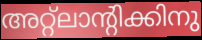
അറ്റ്ലാന്റിക്കിനു